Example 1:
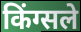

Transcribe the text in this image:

किंग्सले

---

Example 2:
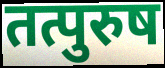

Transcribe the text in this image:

तत्पुरुष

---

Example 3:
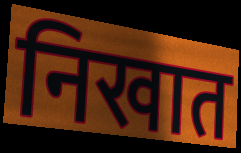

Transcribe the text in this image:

निखात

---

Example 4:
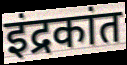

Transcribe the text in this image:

इंद्रकांत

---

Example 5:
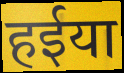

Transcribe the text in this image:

हईया